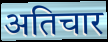
अतिचार